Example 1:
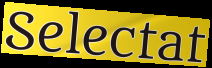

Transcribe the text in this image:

Selectat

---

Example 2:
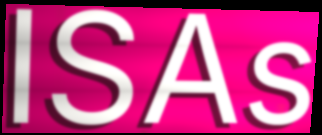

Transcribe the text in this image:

ISAs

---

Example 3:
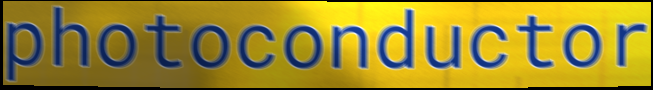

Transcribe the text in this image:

photoconductor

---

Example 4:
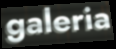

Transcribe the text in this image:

galeria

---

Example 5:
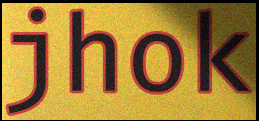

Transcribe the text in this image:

jhok